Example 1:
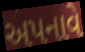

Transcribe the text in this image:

અપનાવે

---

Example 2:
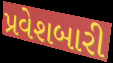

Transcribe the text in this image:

પ્રવેશબારી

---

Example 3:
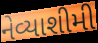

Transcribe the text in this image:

નેવ્યાશીમી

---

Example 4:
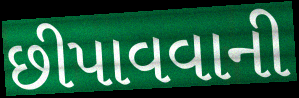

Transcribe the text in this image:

છીપાવવાની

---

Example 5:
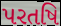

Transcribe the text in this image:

પરતષિ